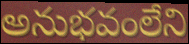
అనుభవంలేని